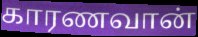
காரணவான்